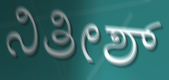
ನಿತೀಶ್